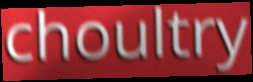
choultry